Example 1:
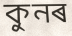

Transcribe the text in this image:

কুনৰ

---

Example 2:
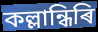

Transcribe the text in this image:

কল্লান্ধিৰি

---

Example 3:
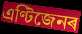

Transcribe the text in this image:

এণ্টিজেনৰ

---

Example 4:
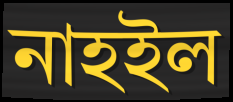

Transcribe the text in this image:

নাহইল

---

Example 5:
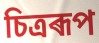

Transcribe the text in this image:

চিত্ৰৰূপ